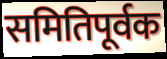
समितिपूर्वक